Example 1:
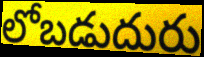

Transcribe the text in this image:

లోబడుదురు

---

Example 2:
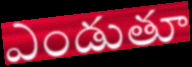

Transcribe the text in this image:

ఎండుతూ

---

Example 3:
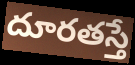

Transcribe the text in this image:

దూరతస్తే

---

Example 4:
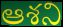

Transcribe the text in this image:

ఆశని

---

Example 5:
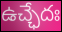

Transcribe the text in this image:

ఉచ్ఛేదః